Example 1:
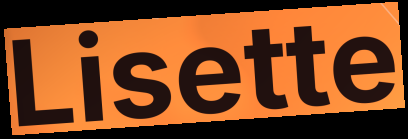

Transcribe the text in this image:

Lisette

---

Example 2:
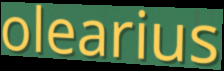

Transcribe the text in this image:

olearius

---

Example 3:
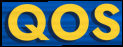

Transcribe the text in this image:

QOS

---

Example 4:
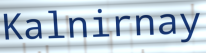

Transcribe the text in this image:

Kalnirnay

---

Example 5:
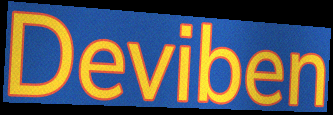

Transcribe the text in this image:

Deviben